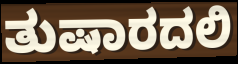
ತುಷಾರದಲಿ